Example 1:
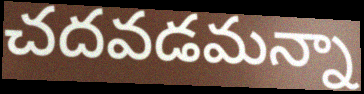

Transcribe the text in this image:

చదవడమన్నా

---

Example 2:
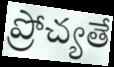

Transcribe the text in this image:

ప్రోచ్యతే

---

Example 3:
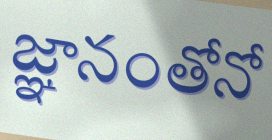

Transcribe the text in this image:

జ్ఞానంతోనో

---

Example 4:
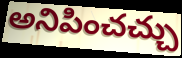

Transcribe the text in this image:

అనిపించచ్చు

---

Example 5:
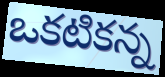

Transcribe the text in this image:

ఒకటికన్న